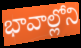
భావాల్లోని